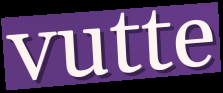
vutte